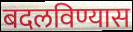
बदलविण्यास